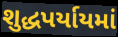
શુદ્ધપર્યાયમાં